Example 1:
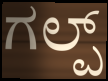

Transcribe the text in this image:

ಗಲ್ಪ್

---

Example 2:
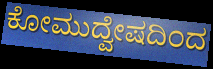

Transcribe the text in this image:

ಕೋಮುದ್ವೇಷದಿಂದ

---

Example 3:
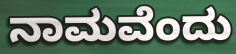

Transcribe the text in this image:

ನಾಮವೆಂದು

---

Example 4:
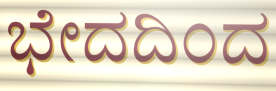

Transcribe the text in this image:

ಭೇದದಿಂದ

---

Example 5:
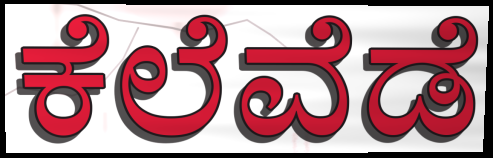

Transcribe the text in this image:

ಕೆಲೆವೆಡೆ